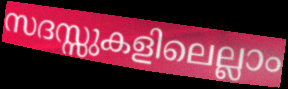
സദസ്സുകളിലെല്ലാം